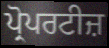
ਪ੍ਰੋਪਰਟੀਜ਼